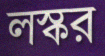
লস্কর